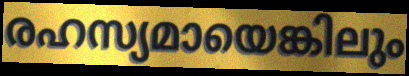
രഹസ്യമായെങ്കിലും